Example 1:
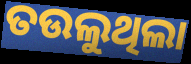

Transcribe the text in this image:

ତଉଲୁଥିଲା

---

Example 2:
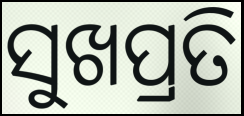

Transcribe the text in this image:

ସୁଖପ୍ରତି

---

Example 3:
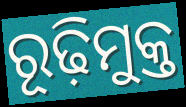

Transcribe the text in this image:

ରୂଢ଼ିମୁକ୍ତ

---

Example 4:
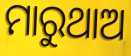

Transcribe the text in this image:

ମାରୁଥାଅ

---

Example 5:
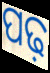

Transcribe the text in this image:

ପଢ଼